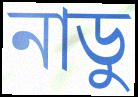
নাডু